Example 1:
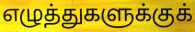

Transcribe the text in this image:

எழுத்துகளுக்குக்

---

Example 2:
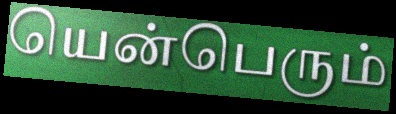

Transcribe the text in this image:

யென்பெரும்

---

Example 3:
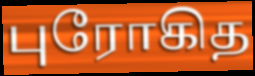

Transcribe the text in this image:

புரோகித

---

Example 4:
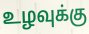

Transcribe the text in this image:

உழவுக்கு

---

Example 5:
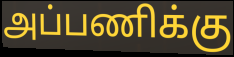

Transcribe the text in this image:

அப்பணிக்கு